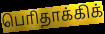
பெரிதாக்கிக்